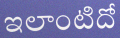
ఇలాంటిదో